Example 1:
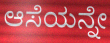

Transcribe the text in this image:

ಆಸೆಯನ್ನೇ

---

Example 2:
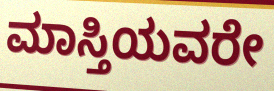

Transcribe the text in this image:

ಮಾಸ್ತಿಯವರೇ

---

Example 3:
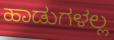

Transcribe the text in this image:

ಹಾಡುಗಳಲ್ಲ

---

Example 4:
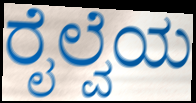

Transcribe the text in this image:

ರೈಲ್ವೆಯ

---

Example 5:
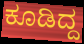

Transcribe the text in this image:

ಕೂಡಿದ್ದ